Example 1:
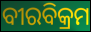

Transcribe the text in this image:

ବୀରବିକ୍ରମ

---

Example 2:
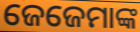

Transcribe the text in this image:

ଜେଜେମାଙ୍କ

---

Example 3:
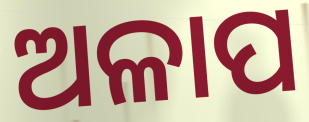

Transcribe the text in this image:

ଅଳାପ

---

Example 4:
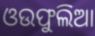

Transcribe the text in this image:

ଓଉଫୁଲିଆ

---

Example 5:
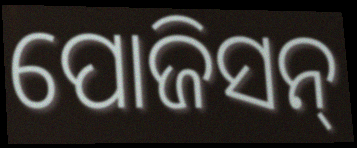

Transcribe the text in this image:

ପୋଜିସନ୍